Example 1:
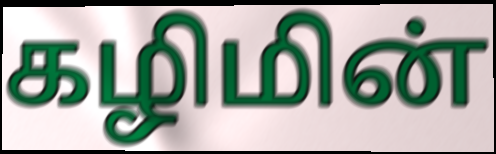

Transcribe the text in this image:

கழிமின்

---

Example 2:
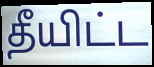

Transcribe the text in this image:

தீயிட்ட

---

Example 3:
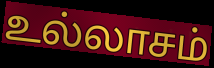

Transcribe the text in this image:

உல்லாசம்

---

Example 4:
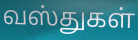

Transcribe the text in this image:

வஸ்துகள்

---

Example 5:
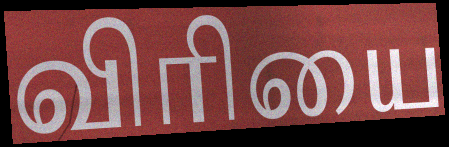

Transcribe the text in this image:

விரியை